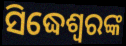
ସିଦ୍ଧେଶ୍ୱରଙ୍କ